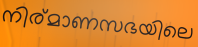
നിര്മാണസഭയിലെ